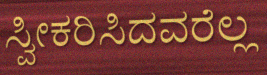
ಸ್ವೀಕರಿಸಿದವರೆಲ್ಲ